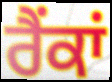
ਰੈਂਕਾਂ